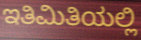
ಇತಿಮಿತಿಯಲ್ಲಿ